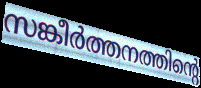
സങ്കീർത്തനത്തിന്റെ